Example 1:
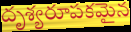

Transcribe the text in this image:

దృశ్యరూపకమైన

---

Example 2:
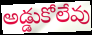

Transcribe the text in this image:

అడ్డుకోలేవు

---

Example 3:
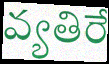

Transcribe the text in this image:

వ్యతిరే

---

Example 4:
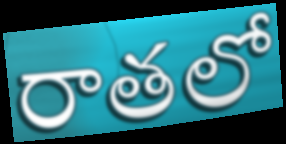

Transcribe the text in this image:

రాతలో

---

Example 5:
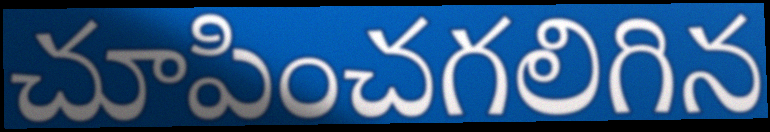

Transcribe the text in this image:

చూపించగలిగిన